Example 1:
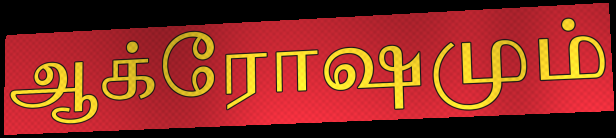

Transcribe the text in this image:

ஆக்ரோஷமும்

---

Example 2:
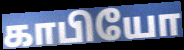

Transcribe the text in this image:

காபியோ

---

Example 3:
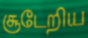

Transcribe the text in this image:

சூடேறிய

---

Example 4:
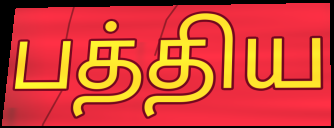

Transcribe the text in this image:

பத்திய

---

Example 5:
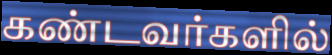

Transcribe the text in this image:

கண்டவர்களில்